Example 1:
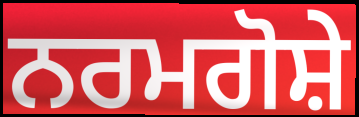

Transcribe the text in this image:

ਨਰਮਗੋਸ਼ੇ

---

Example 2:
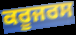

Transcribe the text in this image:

ਕਰੂਜਰਸ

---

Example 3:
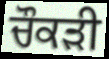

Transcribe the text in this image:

ਚੌਕੜੀ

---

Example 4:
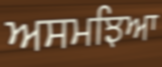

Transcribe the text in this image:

ਅਸਮਝਿਆ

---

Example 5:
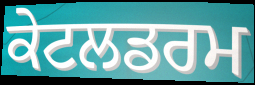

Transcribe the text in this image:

ਕੇਟਲਡਰਮ